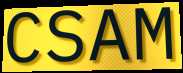
CSAM